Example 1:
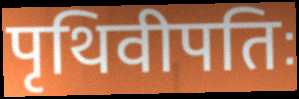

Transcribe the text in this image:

पृथिवीपतिः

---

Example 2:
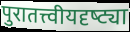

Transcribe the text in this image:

पुरातत्त्वीयदृष्ट्या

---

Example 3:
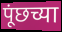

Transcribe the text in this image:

पूंछच्या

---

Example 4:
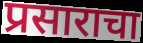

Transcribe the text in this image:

प्रसाराचा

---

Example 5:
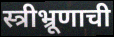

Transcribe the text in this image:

स्त्रीभ्रूणाची